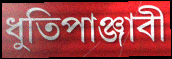
ধুতিপাঞ্জাবী